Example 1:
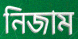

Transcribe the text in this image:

নিজাম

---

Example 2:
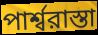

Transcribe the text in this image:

পার্শ্বরাস্তা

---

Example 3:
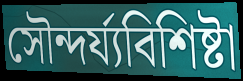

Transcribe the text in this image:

সৌন্দর্য্যবিশিষ্টা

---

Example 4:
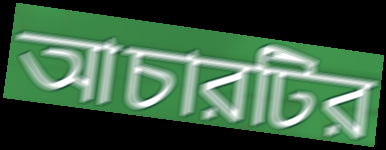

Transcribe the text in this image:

আচারটির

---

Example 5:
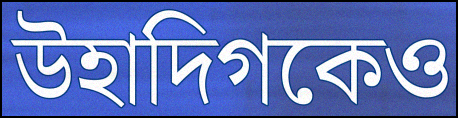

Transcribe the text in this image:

উহাদিগকেও